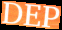
DEP